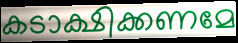
കടാക്ഷിക്കണമേ